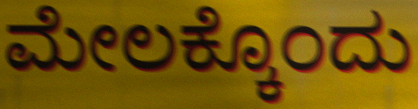
ಮೇಲಕ್ಕೊಂದು